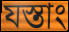
যস্তাং